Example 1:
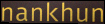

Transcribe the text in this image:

nankhun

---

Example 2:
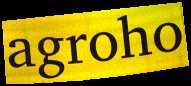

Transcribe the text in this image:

agroho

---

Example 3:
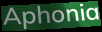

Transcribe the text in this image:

Aphonia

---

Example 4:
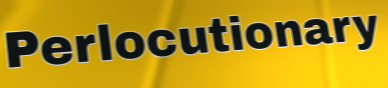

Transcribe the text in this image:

Perlocutionary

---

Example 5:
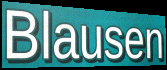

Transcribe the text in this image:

Blausen